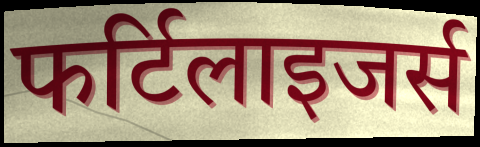
फर्टिलाइजर्स